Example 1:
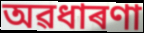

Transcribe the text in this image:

অৱধাৰণা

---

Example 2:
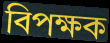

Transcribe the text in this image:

বিপক্ষক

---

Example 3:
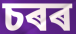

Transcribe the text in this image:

চৰৰ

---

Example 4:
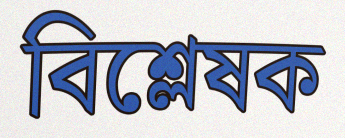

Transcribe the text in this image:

বিশ্লেষক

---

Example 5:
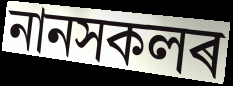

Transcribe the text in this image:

নানসকলৰ